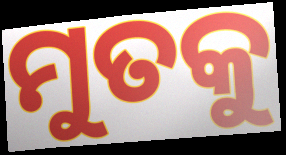
ମୁତକୁ